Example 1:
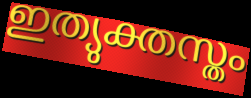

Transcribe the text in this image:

ഇത്യുക്തസ്തം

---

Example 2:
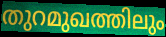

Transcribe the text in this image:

തുറമുഖത്തിലും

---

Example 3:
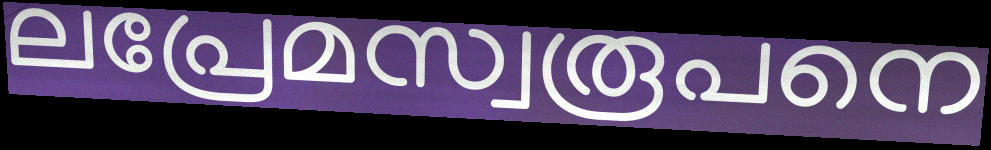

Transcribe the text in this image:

ലപ്രേമസ്വരൂപനെ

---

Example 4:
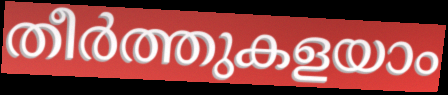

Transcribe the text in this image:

തീർത്തുകളയാം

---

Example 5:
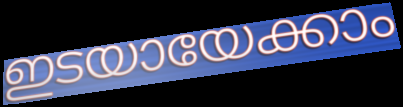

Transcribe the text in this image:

ഇടയായേക്കാം